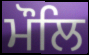
ਮੌਲਿ